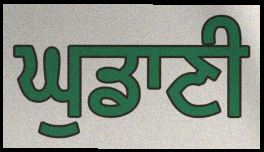
ਘੁਡਾਣੀ